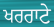
ਖਰਰਾਟੇ